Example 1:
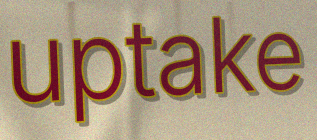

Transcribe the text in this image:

uptake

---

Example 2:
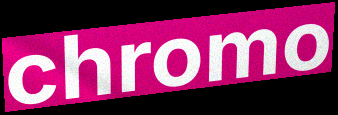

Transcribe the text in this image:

chromo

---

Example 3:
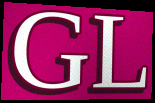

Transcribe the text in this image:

GL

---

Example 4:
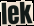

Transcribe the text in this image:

lek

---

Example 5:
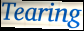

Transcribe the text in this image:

Tearing